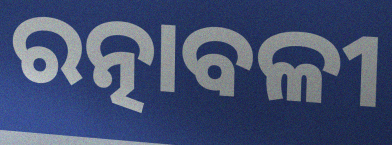
ରତ୍ନାବଳୀ